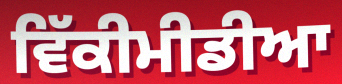
ਵਿੱਕੀਮੀਡੀਆ